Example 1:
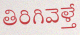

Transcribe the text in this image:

తిరిగివెళ్తే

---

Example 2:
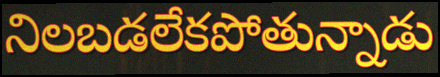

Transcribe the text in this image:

నిలబడలేకపోతున్నాడు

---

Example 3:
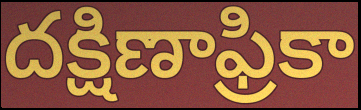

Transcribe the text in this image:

దక్షిణాఫ్రికా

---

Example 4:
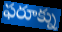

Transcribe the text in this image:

ఫరూక్ను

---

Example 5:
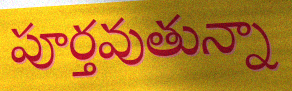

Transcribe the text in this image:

పూర్తవుతున్నా